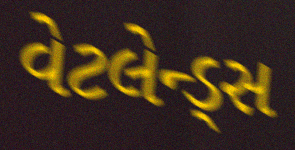
વેટલેન્ડ્સ